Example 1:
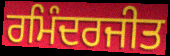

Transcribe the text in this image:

ਰਮਿੰਦਰਜੀਤ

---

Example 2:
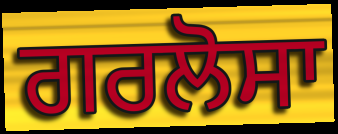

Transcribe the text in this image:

ਗਰਲੋਸਾ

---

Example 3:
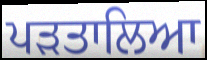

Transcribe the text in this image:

ਪੜਤਾਲਿਆ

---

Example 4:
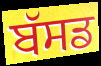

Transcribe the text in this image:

ਬੱਸਡ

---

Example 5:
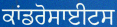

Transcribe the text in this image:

ਕਾਂਡਰੋਸਾਈਟਸ